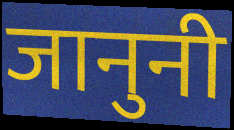
जानुनी